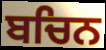
ਬਚਿਨ